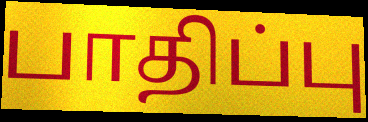
பாதிப்பு